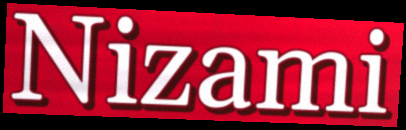
Nizami